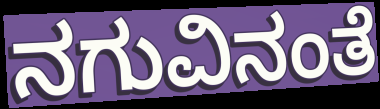
ನಗುವಿನಂತೆ